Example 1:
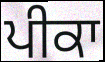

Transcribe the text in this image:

ਪੀਕਾ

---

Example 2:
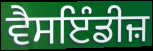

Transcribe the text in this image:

ਵੈਸਇੰਡੀਜ਼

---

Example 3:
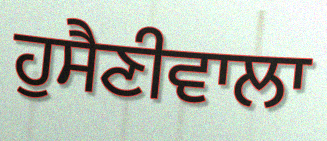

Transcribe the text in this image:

ਹੁਸੈਣੀਵਾਲਾ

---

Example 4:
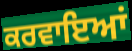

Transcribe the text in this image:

ਕਰਵਾਇਆਂ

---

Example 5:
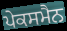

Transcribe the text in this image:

ਪੇਕਸਮੈਨ